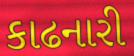
કાઢનારી